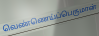
வெண்ணெய்ப்பெருமான்